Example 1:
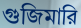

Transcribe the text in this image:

গুজিমারি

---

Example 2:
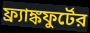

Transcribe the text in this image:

ফ্র্যাঙ্কফুর্টের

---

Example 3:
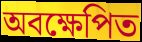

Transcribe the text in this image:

অবক্ষেপিত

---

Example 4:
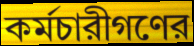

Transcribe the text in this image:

কর্মচারীগণের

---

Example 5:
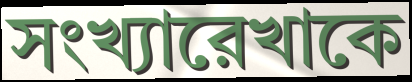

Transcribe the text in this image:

সংখ্যারেখাকে